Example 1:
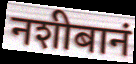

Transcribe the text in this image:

नशीबानं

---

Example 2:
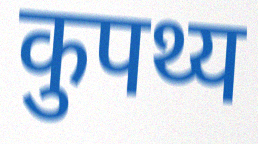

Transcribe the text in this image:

कुपथ्य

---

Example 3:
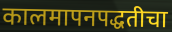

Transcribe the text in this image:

कालमापनपद्धतीचा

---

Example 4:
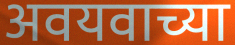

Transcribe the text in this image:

अवयवाच्या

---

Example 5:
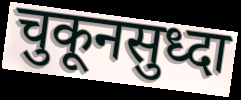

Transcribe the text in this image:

चुकूनसुध्दा